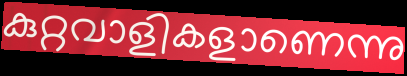
കുറ്റവാളികളാണെന്നു